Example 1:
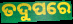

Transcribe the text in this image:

ତଦୁପରେ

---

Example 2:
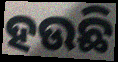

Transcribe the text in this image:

ହଉଛି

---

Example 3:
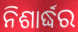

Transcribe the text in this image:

ନିଶାର୍ଦ୍ଧର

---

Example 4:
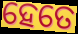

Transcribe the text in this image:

ହେତେ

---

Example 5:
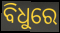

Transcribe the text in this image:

ବିଧୁରେ